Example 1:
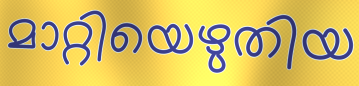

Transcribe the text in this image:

മാറ്റിയെഴുതിയ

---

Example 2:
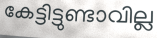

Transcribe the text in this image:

കേട്ടിട്ടുണ്ടാവില്ല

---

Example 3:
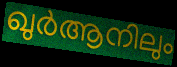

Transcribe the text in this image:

ഖുർആനിലും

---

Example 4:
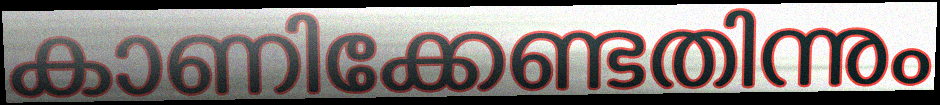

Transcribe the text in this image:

കാണിക്കേണ്ടതിന്നും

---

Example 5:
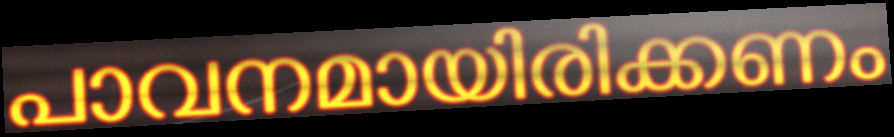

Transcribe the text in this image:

പാവനമായിരിക്കണം